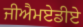
ਜੀਐਮਏਡੀਏ